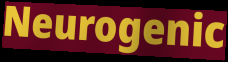
Neurogenic